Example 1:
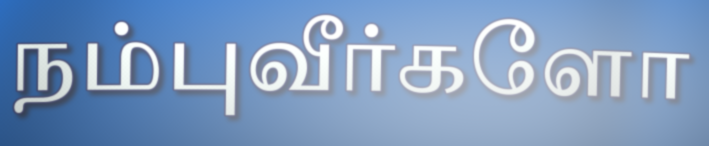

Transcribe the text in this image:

நம்புவீர்களோ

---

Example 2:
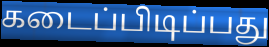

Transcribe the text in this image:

கடைப்பிடிப்பது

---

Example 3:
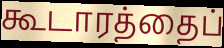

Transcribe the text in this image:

கூடாரத்தைப்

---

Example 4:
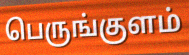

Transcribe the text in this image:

பெருங்குளம்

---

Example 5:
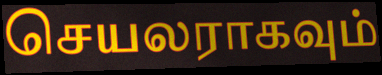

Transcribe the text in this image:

செயலராகவும்